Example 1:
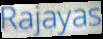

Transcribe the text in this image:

Rajayas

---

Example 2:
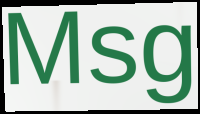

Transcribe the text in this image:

Msg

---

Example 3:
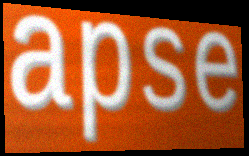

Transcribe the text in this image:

apse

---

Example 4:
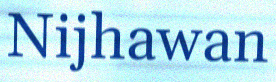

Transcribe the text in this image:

Nijhawan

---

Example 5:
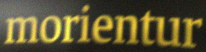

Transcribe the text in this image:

morientur